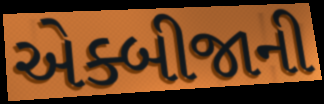
એક્બીજાની